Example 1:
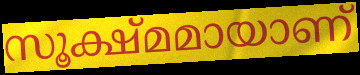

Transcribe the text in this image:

സൂക്ഷ്മമായാണ്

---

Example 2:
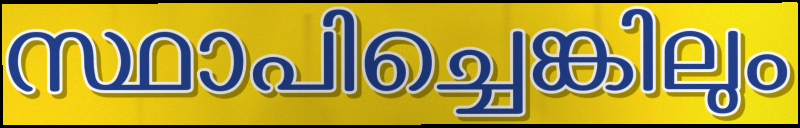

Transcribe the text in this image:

സ്ഥാപിച്ചെങ്കിലും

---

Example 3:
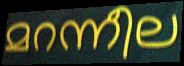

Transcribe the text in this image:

മറന്നീല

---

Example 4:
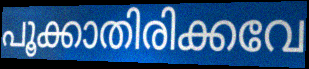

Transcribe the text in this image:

പൂക്കാതിരിക്കവേ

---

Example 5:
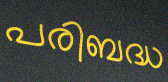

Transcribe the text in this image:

പരിബദ്ധ